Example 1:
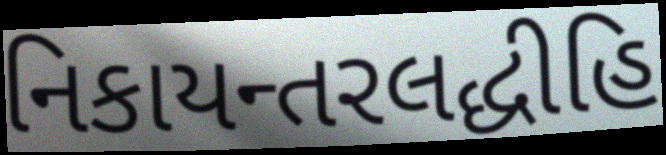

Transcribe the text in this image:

નિકાયન્તરલદ્ધીહિ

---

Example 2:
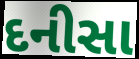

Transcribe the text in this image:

દનીસા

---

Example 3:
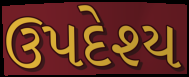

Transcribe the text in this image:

ઉપદેશ્ય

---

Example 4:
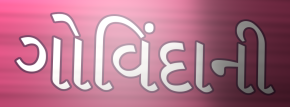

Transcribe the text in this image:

ગોવિંદાની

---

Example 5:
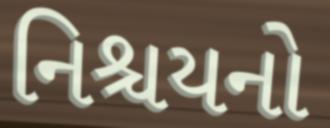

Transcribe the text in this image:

નિશ્ચયનો